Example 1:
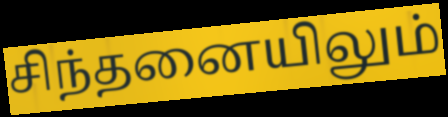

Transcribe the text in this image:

சிந்தனையிலும்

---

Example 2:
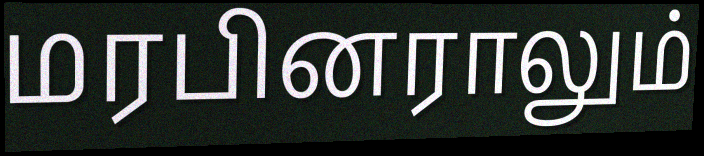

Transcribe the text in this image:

மரபினராலும்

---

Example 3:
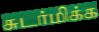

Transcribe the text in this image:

சுடர்மிக்க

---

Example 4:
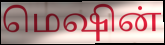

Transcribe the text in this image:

மெஷின்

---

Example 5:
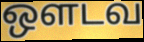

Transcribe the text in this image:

ஔடவ